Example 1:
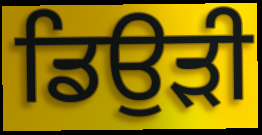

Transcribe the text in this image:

ਡਿਉੜੀ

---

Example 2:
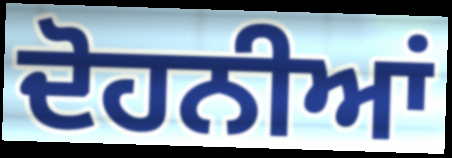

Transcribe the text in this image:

ਦੋਹਨੀਆਂ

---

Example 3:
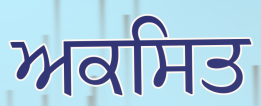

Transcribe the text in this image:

ਅਕਸਿਤ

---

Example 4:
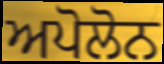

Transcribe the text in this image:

ਅਪੋਲੋਨ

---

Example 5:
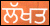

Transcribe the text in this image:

ਲੱਖਤ